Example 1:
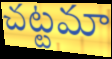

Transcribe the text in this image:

చట్టమా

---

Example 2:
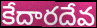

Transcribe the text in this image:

కేదారదేవ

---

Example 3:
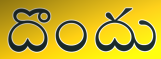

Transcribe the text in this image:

దొందు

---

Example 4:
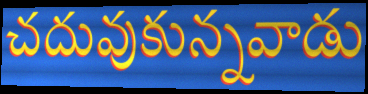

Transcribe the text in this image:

చదువుకున్నవాడు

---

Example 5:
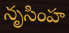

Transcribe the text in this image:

నృసింహ